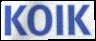
KOIK